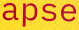
apse